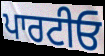
ਪਾਰਟੀਓ